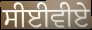
ਸੀਈਵੀਏ